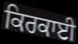
ਕਿਰਕਾਈ